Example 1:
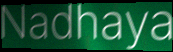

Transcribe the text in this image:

Nadhaya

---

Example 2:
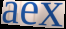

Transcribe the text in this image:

aex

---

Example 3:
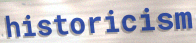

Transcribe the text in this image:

historicism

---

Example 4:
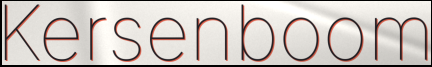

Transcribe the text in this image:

Kersenboom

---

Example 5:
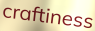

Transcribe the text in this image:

craftiness